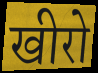
खीरो